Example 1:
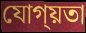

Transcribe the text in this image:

যোগ্য়তা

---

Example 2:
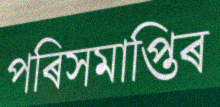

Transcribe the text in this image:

পৰিসমাপ্তিৰ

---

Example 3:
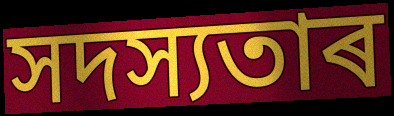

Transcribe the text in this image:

সদস্যতাৰ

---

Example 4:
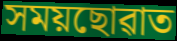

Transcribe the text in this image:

সময়ছোৱাত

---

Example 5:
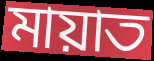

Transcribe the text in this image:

মায়াত